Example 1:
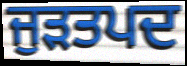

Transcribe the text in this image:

ਜੁੜਤਪਦ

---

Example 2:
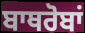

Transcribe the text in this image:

ਬਾਥਰੋਬਾਂ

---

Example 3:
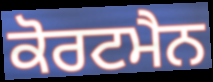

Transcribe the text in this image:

ਕੋਰਟਮੈਨ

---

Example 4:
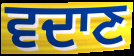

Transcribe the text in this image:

ਵਦਾਣ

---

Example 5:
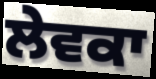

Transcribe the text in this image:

ਲੇਵਕਾ